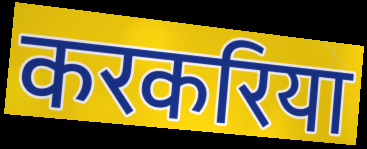
करकरिया